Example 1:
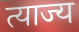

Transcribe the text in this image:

त्याज्य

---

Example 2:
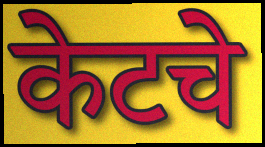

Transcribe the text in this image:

केटचे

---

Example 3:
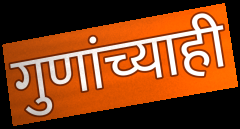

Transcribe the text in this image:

गुणांच्याही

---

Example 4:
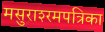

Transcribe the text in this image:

मसुराश्रमपत्रिका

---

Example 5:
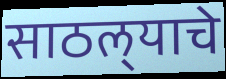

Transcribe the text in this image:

साठल्याचे